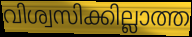
വിശ്വസിക്കില്ലാത്ത